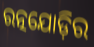
ରତ୍ନଯୋଡ଼ିର